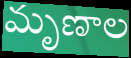
మృణాల